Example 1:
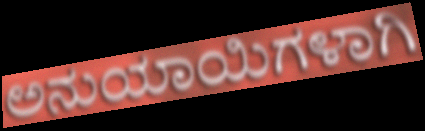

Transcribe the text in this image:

ಅನುಯಾಯಿಗಳಾಗಿ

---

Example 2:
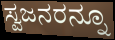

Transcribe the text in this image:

ಸ್ವಜನರನ್ನೂ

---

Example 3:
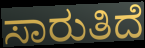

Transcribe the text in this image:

ಸಾರುತಿದೆ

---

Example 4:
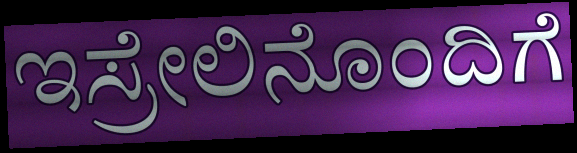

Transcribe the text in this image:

ಇಸ್ರೇಲಿನೊಂದಿಗೆ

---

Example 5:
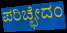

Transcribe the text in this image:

ಪರಿಚ್ಛೇದಂ